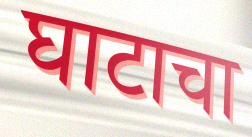
घाटाचा